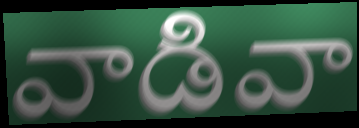
వాడివా